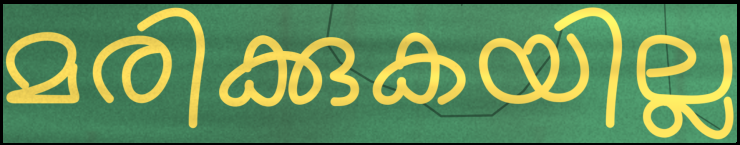
മരിക്കുകയില്ല